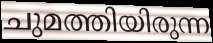
ചുമത്തിയിരുന്ന